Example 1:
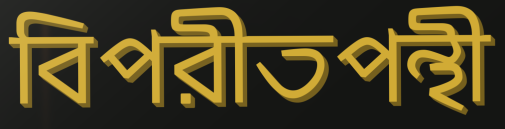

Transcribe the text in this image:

বিপরীতপন্থী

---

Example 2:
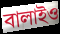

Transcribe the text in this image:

বালাইও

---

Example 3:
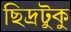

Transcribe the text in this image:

ছিদ্রটুকু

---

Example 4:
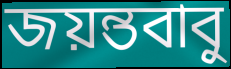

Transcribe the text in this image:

জয়ন্তবাবু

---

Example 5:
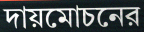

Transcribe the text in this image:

দায়মোচনের